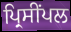
ਪ੍ਰਿਸੀਂਪਲ